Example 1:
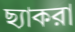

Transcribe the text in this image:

ছ্যাকরা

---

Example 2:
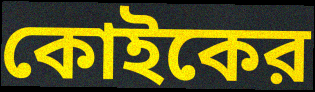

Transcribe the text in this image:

কোইকের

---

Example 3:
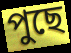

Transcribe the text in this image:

পুছে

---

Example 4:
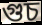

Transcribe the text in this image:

গুচ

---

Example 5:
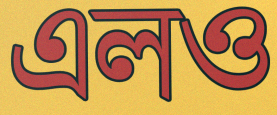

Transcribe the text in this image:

এলও